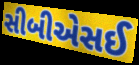
સીબીએસઈ